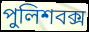
পুলিশবক্স